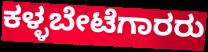
ಕಳ್ಳಬೇಟೆಗಾರರು